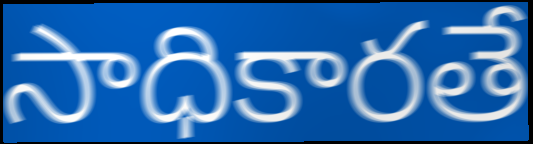
సాధికారతే